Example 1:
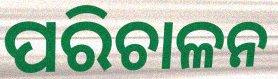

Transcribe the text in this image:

ପରିଚାଳନ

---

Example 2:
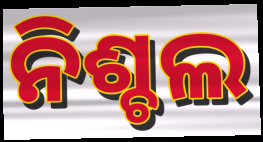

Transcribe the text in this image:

ନିଶ୍ଚଲ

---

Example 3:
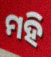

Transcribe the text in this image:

ମହି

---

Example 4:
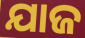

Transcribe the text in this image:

ଯାଜ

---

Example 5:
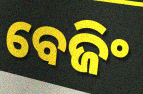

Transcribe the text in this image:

ବେଜିଂ